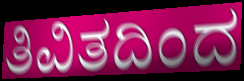
ತಿವಿತದಿಂದ